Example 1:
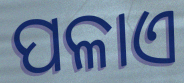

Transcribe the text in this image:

ପଳାଏ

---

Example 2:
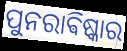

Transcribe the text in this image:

ପୁନରାଵିଷ୍କାର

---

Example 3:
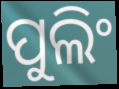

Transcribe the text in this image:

ପୁଲିଂ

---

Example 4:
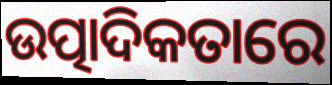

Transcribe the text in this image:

ଉତ୍ପାଦିକତାରେ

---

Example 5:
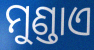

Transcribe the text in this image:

ମୁଣ୍ଡାଏ